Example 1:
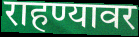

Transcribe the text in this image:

राहण्यावर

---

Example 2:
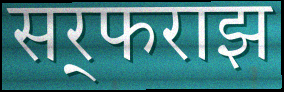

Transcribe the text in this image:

सर्फराझ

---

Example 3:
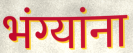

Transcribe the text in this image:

भंग्यांना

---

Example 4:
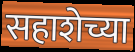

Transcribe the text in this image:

सहाशेच्या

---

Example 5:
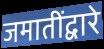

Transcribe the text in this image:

जमातींद्वारे